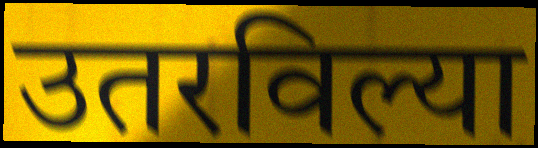
उतरविल्या